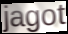
jagot